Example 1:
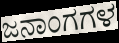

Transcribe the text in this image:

ಜನಾಂಗಗಳ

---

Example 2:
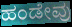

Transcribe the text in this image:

ಹಂಡೇವು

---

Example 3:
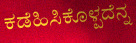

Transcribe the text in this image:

ಕಡೆಹಿಸಿಕೊಳ್ಪದೆನ್ನ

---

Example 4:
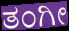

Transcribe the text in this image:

ತಂಗೀ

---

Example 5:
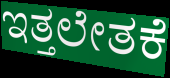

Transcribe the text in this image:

ಇತ್ತಲೇತಕೆ